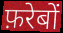
फ़रेबों